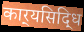
कार्यसिद्धि